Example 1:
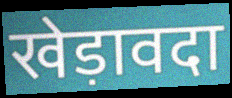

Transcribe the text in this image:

खेड़ावदा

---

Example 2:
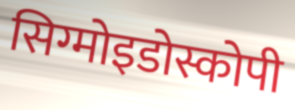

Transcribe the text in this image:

सिग्मोइडोस्कोपी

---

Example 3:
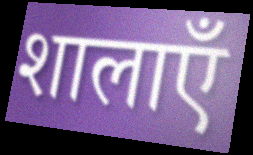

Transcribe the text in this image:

शालाएँ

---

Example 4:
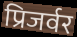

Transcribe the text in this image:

प्रिजर्वर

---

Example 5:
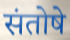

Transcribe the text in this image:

संतोषे